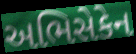
અભિસેકેન